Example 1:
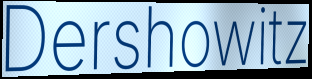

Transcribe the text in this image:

Dershowitz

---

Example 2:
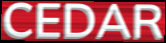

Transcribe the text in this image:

CEDAR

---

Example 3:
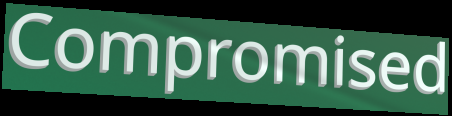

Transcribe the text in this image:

Compromised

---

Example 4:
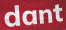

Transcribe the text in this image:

dant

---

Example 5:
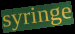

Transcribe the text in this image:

syringe